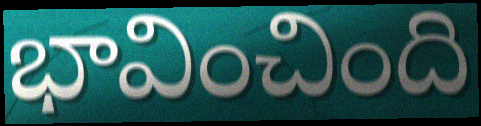
భావించింది